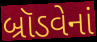
બ્રૉડવેનાં